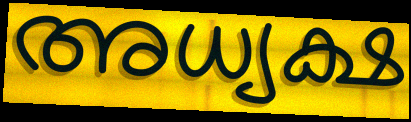
അധ്യക്ഷ